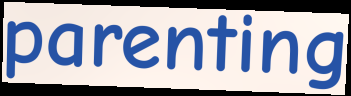
parenting